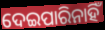
ଦେଇପାରିନାହିଁ